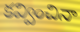
కవ్వించినా